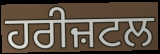
ਹਰੀਜ਼ਟਲ